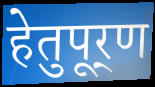
हेतुपूर्ण